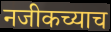
नजीकच्याच